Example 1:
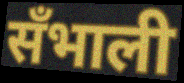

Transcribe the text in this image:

सँभाली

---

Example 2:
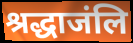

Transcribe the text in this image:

श्रद्धाजंलि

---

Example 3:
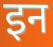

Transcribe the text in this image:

इन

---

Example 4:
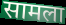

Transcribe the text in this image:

सामला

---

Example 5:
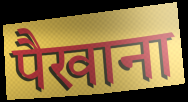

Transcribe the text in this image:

पैखाना